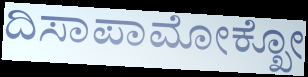
ದಿಸಾಪಾಮೋಕ್ಖೋ